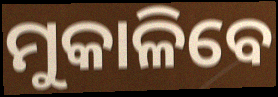
ମୁକାଳିବେ